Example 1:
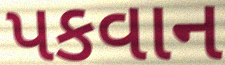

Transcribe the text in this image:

પકવાન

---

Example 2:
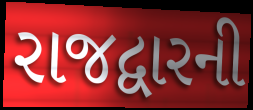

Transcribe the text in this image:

રાજદ્વારની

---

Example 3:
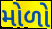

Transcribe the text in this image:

મોળો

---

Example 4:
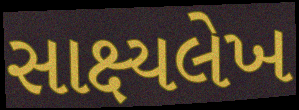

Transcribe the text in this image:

સાક્ષ્યલેખ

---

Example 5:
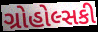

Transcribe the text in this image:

ગ્રોહોલ્સકી